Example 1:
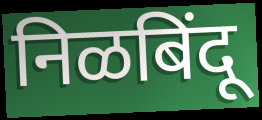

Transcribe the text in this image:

निळबिंदू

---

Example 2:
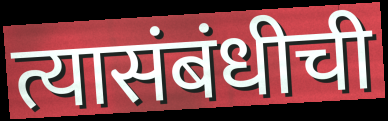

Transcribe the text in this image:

त्यासंबंधीची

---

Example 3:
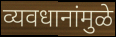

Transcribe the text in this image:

व्यवधानांमुळे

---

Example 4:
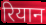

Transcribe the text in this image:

रियान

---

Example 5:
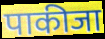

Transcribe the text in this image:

पाकीजा